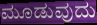
ಮೂಡುವುದು